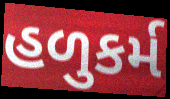
હળુકર્મ